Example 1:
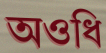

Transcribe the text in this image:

অওধি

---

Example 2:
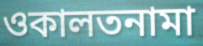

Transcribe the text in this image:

ওকালতনামা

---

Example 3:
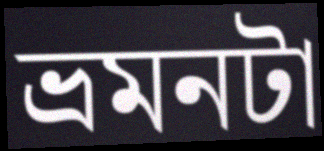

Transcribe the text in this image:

ভ্রমনটা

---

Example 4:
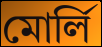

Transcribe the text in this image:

মোর্লি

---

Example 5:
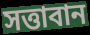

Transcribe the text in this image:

সত্তাবান